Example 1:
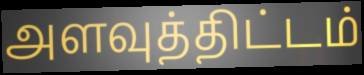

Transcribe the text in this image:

அளவுத்திட்டம்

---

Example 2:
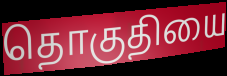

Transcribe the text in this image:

தொகுதியை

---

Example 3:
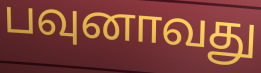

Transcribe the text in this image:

பவுனாவது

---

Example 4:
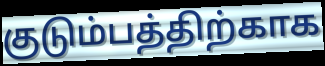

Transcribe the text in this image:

குடும்பத்திற்காக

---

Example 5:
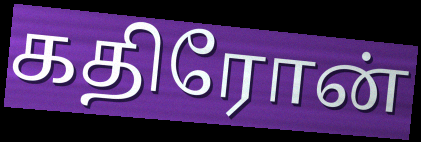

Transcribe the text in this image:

கதிரோன்